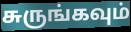
சுருங்கவும்